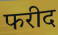
फरीद